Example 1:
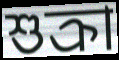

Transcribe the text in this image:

শুক্ৰা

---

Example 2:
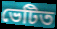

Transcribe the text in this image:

ভেটিত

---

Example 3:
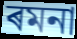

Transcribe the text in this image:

ৰমনা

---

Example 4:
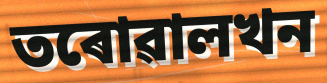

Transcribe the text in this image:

তৰোৱালখন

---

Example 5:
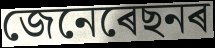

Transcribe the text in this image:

জেনেৰেছনৰ